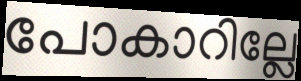
പോകാറില്ലേ